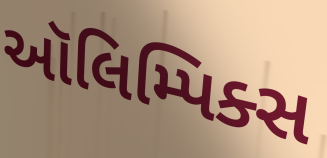
ઑલિમ્પિક્સ